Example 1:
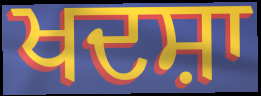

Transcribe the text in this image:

ਖਦਸ਼ਾ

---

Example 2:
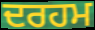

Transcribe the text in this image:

ਦਰਹਮ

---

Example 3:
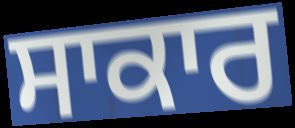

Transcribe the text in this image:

ਸਾਕਾਰ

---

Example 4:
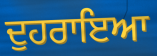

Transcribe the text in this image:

ਦੁਹਰਾਇਆ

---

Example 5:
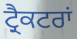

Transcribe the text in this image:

ਟ੍ਰੈਕਟਰਾਂ